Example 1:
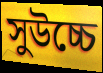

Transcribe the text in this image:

সুউচ্চে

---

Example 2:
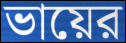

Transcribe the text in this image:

ভায়ের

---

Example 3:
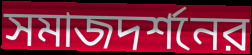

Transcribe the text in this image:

সমাজদর্শনের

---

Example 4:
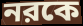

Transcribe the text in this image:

নরকে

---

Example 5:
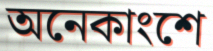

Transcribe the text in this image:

অনেকাংশে